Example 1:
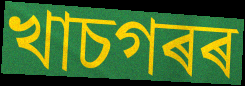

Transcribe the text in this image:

খাচগৰৰ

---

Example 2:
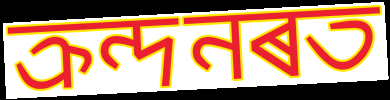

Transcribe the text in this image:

ক্ৰন্দনৰত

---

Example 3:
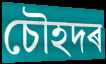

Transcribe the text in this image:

চৌহদৰ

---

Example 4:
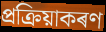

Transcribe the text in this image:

প্ৰক্ৰিয়াকৰণ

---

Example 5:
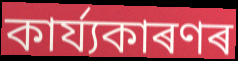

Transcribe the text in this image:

কাৰ্য্যকাৰণৰ